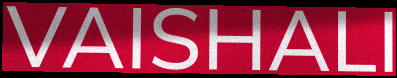
VAISHALI